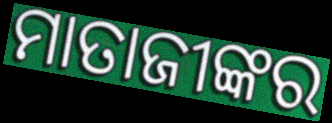
ମାତାଜୀଙ୍କର